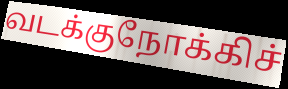
வடக்குநோக்கிச்